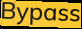
Bypass